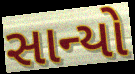
સાન્યો